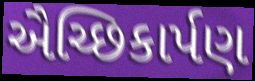
ઐચ્છિકાર્પણ